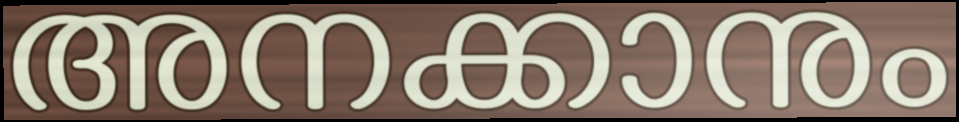
അനക്കാനും